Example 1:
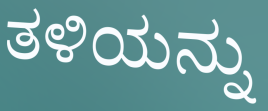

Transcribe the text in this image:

ತಳಿಯನ್ನು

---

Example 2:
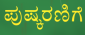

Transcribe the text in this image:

ಪುಷ್ಕರಣಿಗೆ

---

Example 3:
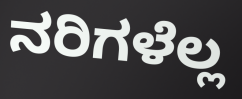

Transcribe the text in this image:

ನರಿಗಳೆಲ್ಲ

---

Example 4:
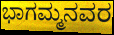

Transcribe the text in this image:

ಭಾಗಮ್ಮನವರ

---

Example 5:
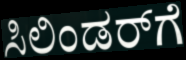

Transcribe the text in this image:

ಸಿಲಿಂಡರ್‌ಗೆ